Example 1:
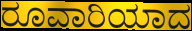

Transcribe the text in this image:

ರೂವಾರಿಯಾದ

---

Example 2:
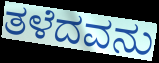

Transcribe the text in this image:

ತಳೆದವನು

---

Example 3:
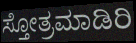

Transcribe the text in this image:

ಸ್ತೋತ್ರಮಾಡಿರಿ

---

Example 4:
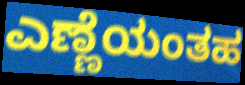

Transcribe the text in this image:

ಎಣ್ಣೆಯಂತಹ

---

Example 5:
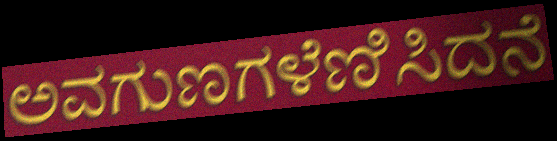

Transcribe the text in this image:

ಅವಗುಣಗಳೆಣಿಸಿದನೆ